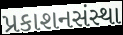
પ્રકાશનસંસ્થા